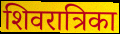
शिवरात्रिका